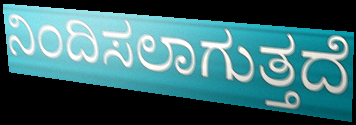
ನಿಂದಿಸಲಾಗುತ್ತದೆ